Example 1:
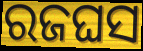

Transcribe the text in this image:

ରଜଘସ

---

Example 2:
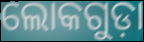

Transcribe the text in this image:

ଲୋକଗୁଡ଼ା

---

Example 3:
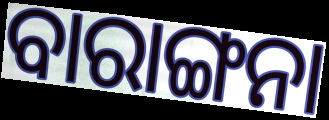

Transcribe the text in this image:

ବାରାଙ୍ଗନା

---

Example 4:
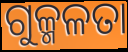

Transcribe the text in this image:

ଗୁଳ୍ମଳତା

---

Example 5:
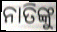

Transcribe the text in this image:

ନାତିଙ୍କୁ